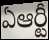
ఏఆర్టీ